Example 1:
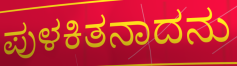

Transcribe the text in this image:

ಪುಳಕಿತನಾದನು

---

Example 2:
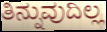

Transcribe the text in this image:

ತಿನ್ನುವುದಿಲ್ಲ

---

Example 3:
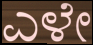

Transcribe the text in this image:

ಎಳೇ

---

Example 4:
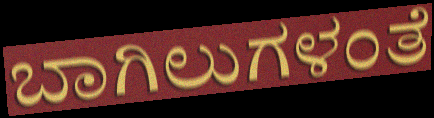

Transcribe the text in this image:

ಬಾಗಿಲುಗಳಂತೆ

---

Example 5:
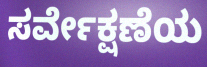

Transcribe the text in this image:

ಸರ್ವೇಕ್ಷಣೆಯ